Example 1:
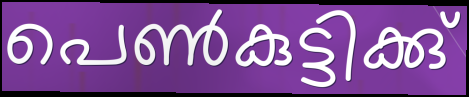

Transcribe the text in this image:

പെൺകുട്ടിക്കു്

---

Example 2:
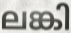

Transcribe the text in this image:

ലങ്കി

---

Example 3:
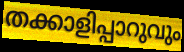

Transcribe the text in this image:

തക്കാളിപ്പാറുവും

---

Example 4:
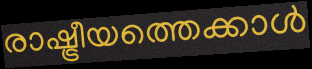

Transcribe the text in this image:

രാഷ്ട്രീയത്തെക്കാൾ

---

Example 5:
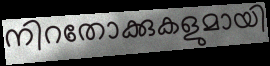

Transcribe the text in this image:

നിറതോക്കുകളുമായി